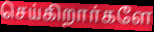
செய்கிறார்களே